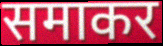
समाकर